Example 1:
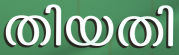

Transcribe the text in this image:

തിയതി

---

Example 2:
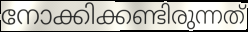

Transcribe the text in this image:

നോക്കിക്കണ്ടിരുന്നത്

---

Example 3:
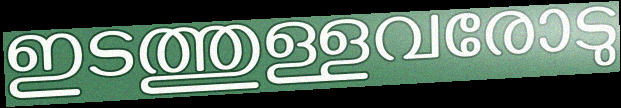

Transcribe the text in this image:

ഇടത്തുള്ളവരോടു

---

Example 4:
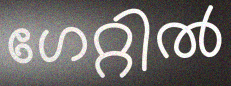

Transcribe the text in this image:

ഗേറ്റിൽ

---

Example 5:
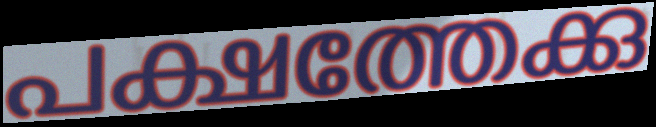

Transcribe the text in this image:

പക്ഷത്തേക്കു